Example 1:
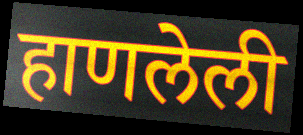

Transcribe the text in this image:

हाणलेली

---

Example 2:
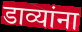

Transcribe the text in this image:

डाव्यांना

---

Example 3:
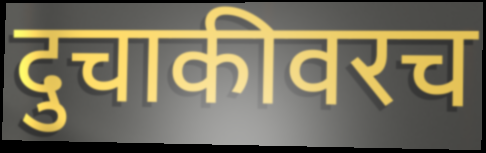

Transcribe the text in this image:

दुचाकीवरच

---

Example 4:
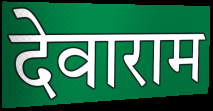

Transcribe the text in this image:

देवाराम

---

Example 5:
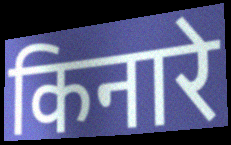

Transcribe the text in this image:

किनारे